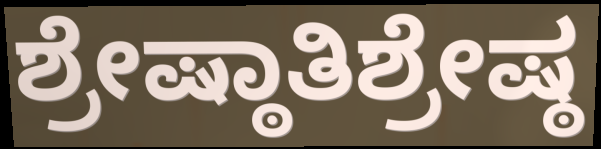
ಶ್ರೇಷ್ಠಾತಿಶ್ರೇಷ್ಠ